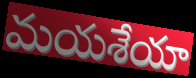
మయశేయా